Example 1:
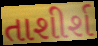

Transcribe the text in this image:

તાશીર્શ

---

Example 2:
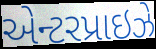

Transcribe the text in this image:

એન્ટરપ્રાઇઝે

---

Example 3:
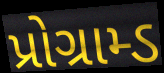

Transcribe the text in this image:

પ્રોગ્રામ્ડ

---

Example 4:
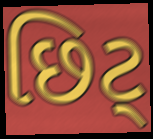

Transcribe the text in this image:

છિટ્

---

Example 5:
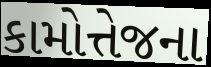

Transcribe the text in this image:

કામોત્તેજના